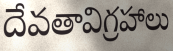
దేవతావిగ్రహాలు